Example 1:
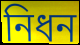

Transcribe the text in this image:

নিধন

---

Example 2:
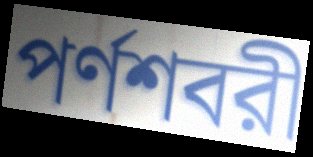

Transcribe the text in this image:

পর্ণশবরী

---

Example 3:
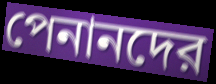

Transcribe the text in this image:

পেনানদের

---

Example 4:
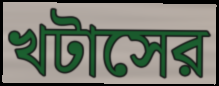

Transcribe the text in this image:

খটাসের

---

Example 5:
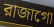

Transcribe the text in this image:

রাজাগো